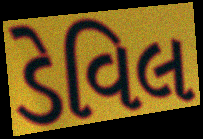
ડેવિલ